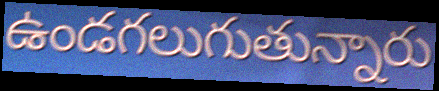
ఉండగలుగుతున్నారు